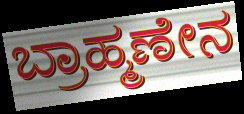
ಬ್ರಾಹ್ಮಣೇನ